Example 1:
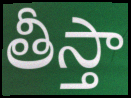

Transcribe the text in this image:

తీస్తా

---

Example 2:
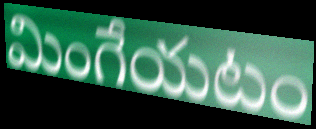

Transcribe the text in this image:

మింగేయటం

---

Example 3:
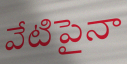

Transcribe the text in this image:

వేటిపైనా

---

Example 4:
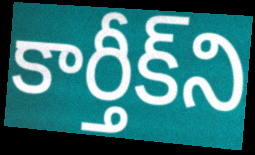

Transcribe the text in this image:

కార్తీక్‌ని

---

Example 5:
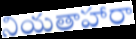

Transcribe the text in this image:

నియతాహారా